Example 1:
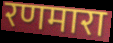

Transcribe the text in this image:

रणमारा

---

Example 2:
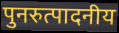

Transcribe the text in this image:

पुनरुत्पादनीय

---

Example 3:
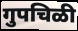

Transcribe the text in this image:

गुपचिळी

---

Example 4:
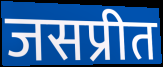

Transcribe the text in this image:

जसप्रीत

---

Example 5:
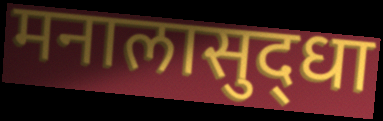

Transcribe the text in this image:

मनालासुद्धा